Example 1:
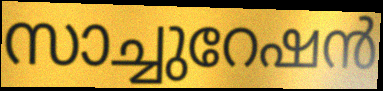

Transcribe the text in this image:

സാച്ചുറേഷൻ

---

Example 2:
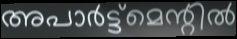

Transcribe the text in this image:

അപാർട്ട്മെന്റിൽ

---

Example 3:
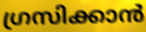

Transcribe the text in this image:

ഗ്രസിക്കാൻ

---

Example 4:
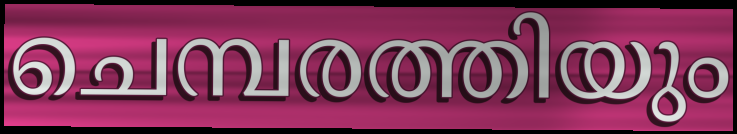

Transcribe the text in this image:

ചെമ്പരത്തിയും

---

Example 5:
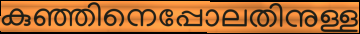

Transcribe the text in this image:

കുഞ്ഞിനെപ്പോലതിനുള്ള